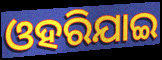
ଓହରିଯାଇ